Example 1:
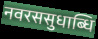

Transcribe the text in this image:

नवरससुधाब्धि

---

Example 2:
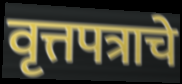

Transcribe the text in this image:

वृत्तपत्राचे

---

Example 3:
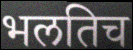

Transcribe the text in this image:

भलतिच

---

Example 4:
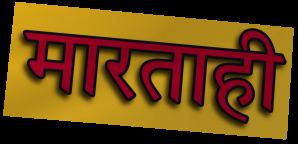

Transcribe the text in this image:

मारताही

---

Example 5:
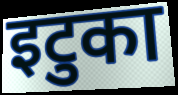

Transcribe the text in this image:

इटुका